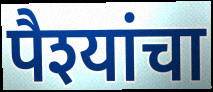
पैश्यांचा